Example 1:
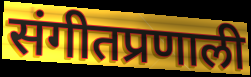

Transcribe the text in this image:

संगीतप्रणाली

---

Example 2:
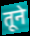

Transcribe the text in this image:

तूने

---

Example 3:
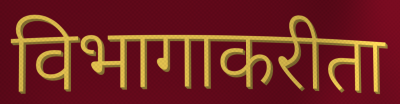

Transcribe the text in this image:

विभागाकरीता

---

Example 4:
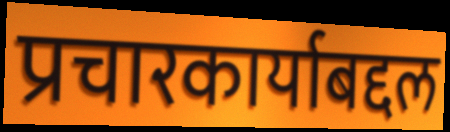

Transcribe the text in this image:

प्रचारकार्याबद्दल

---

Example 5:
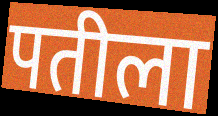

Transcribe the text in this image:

पतीला